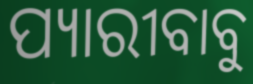
ପ୍ୟାରୀବାବୁ